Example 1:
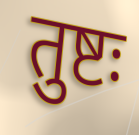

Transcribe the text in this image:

तुष्टः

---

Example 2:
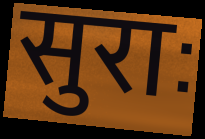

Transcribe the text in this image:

सुराः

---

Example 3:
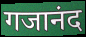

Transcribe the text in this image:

गजानंद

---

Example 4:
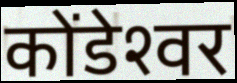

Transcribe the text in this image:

कोंडेश्वर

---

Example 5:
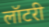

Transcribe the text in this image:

लॉटरी